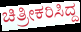
ಚಿತ್ರೀಕರಿಸಿದ್ದ